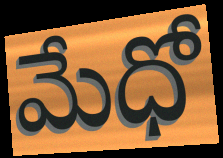
మేధో